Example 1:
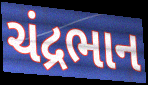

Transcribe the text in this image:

ચંદ્રભાન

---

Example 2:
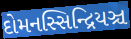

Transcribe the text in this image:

દોમનસ્સિન્દ્રિયઞ્ચ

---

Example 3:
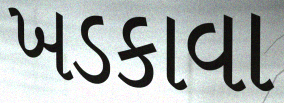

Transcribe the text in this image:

ખડકાવા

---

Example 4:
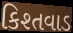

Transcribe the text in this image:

કિશ્તવાડ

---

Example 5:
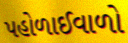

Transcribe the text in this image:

પહોળાઈવાળો